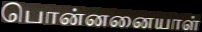
பொன்னனையாள்